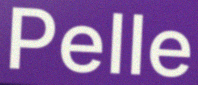
Pelle